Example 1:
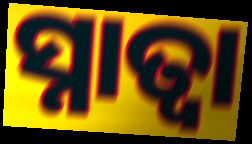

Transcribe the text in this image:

ସ୍ନାତ୍ବା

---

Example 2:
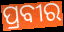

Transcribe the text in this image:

ପ୍ରବୀର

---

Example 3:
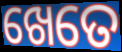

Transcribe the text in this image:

ଖେତେ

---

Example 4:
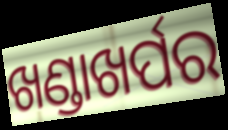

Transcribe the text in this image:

ଖଣ୍ଡାଖର୍ପର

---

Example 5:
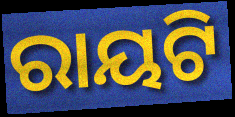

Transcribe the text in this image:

ରାୟଟି